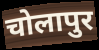
चोलापुर